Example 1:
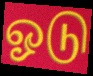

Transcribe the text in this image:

ஓடு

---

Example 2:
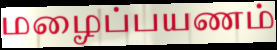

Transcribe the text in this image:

மழைப்பயணம்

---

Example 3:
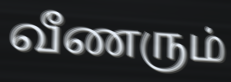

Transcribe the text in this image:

வீணரும்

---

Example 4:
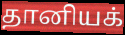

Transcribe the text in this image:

தானியக்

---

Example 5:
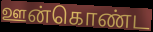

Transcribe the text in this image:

ஊன்கொண்ட